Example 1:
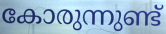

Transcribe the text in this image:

കോരുന്നുണ്ട്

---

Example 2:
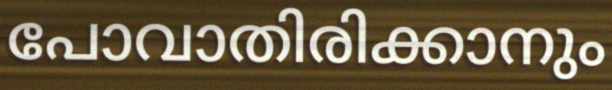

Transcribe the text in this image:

പോവാതിരിക്കാനും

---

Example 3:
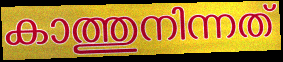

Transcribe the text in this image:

കാത്തുനിന്നത്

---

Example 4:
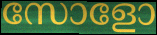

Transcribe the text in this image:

സോളോ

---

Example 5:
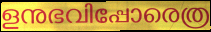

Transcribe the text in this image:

ളനുഭവിപ്പോരെത്ര